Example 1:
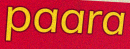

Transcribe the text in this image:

paara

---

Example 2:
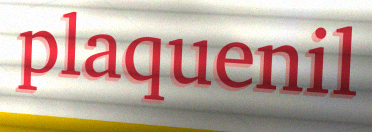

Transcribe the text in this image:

plaquenil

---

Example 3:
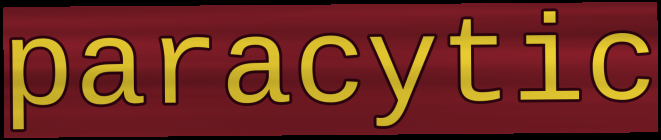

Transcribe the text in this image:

paracytic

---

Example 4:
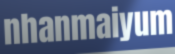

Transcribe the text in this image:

nhanmaiyum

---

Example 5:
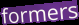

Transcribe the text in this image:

formers